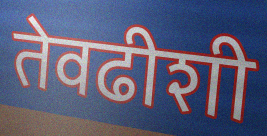
तेवढीशी